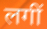
लगीं